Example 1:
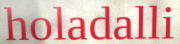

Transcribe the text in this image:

holadalli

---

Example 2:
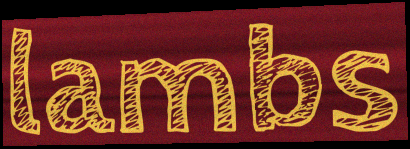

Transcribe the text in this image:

lambs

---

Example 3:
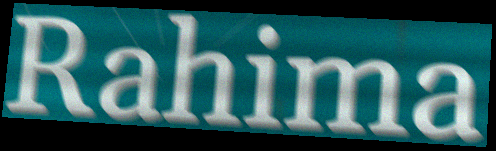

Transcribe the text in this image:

Rahima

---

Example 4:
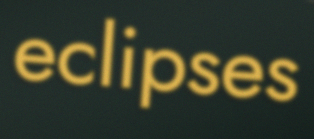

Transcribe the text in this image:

eclipses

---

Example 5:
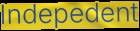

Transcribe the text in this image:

Indepedent